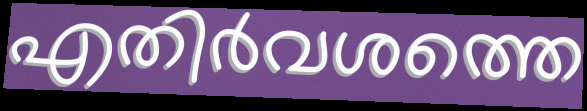
എതിർവശത്തെ